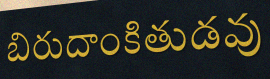
బిరుదాంకితుడవు